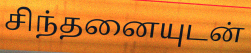
சிந்தனையுடன்